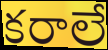
కరాలే